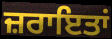
ਜ਼ਰਾਇਤਾਂ